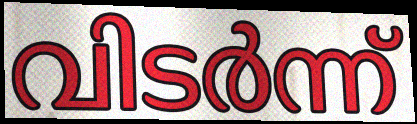
വിടർന്ന്